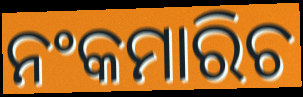
ନଂକମାରିଚ